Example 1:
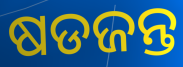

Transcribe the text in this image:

ଷଡଜନ୍ତ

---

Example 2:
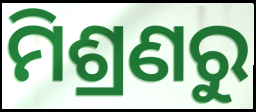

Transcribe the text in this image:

ମିଶ୍ରଣରୁ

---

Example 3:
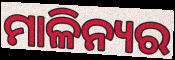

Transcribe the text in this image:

ମାଳିନ୍ୟର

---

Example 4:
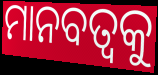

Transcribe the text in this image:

ମାନବତ୍ବକୁ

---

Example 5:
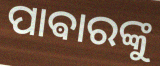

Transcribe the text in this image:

ପାଵାରଙ୍କୁ